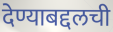
देण्याबद्दलची